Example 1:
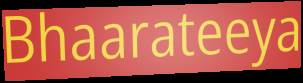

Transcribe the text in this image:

Bhaarateeya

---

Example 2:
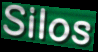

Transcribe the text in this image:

Silos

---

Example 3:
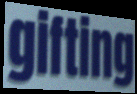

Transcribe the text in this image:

gifting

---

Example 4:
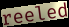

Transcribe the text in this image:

reeled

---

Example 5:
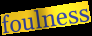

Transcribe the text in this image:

foulness